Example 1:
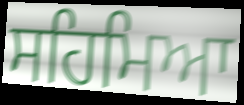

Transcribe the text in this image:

ਸਹਿਮਿਆ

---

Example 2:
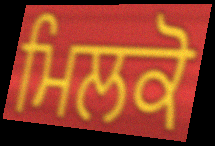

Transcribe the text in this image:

ਮਿਲਕੋ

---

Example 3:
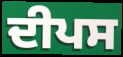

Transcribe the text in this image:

ਦੀਪਸ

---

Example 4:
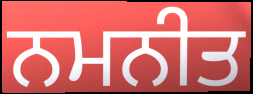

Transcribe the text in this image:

ਨਮਨੀਤ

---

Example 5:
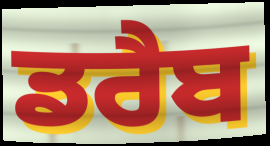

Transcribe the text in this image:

ਡਰੈਬ